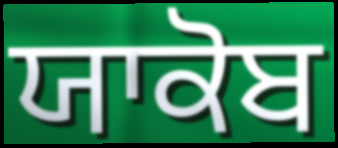
ਯਾਕੋਬ